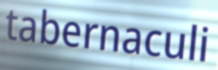
tabernaculi